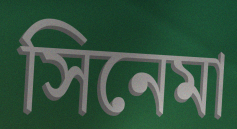
সিনেমা